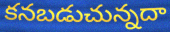
కనబడుచున్నదా